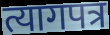
त्यागपत्र